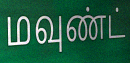
மவுண்ட்